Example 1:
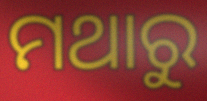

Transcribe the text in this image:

ମଥାରୁ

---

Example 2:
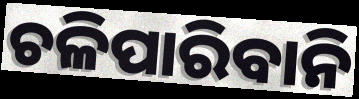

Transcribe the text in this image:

ଚଳିପାରିବାନି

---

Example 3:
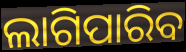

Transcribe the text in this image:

ଲାଗିପାରିବ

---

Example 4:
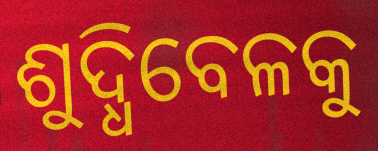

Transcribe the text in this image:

ଶୁଦ୍ଧିବେଳକୁ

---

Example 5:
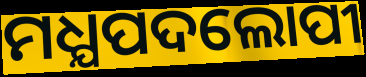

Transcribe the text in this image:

ମଧ୍ଯପଦଲୋପୀ